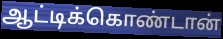
ஆட்டிக்கொண்டான்